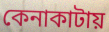
কেনাকাটায়